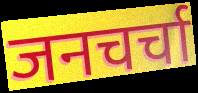
जनचर्चा